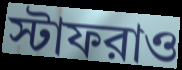
স্টাফরাও